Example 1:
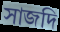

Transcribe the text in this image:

সাজদি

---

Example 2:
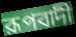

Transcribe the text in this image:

রূপবাদী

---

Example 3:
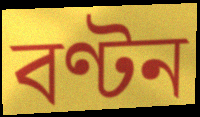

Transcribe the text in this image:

বণ্টন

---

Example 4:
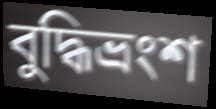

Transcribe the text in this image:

বুদ্ধিভ্রংশ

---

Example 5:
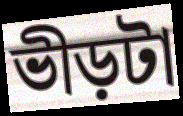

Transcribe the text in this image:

ভীড়টা